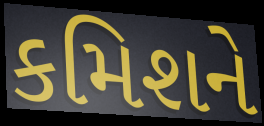
કમિશને